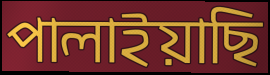
পালাইয়াছি